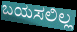
ಬಯಸಲಿಲ್ಲ